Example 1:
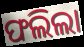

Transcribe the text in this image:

ଫଲିଲା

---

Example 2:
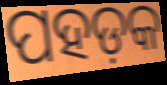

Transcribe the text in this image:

ପହଡ଼କ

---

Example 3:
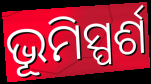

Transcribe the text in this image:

ଭୂମିସ୍ପର୍ଶ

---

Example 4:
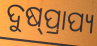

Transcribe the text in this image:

ଦୁଷ୍‌ପ୍ରାପ୍ୟ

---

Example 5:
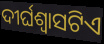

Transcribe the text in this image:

ଦୀର୍ଘଶ୍ୱାସଟିଏ